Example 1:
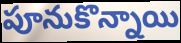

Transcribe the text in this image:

పూనుకొన్నాయి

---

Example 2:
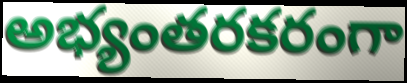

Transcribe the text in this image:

అభ్యంతరకరంగా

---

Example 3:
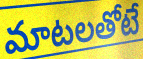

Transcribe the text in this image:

మాటలతోటే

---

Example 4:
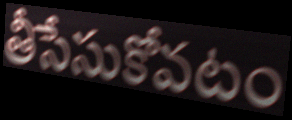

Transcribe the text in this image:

తీసేసుకోవటం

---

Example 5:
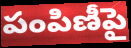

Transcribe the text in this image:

పంపిణీపై